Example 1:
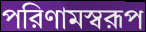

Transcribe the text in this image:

পরিণামস্বরূপ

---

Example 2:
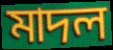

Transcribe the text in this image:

মাদল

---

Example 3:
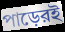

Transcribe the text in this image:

পাড়েরই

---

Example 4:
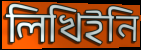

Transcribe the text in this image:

লিখিইনি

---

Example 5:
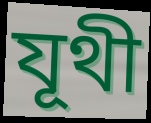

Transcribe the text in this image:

যূথী